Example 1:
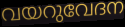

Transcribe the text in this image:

വയറുവേദന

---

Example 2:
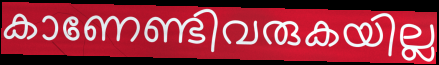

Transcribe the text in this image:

കാണേണ്ടിവരുകയില്ല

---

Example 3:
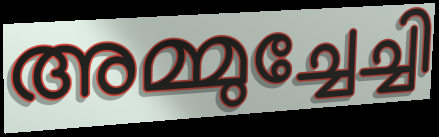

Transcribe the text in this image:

അമ്മുച്ചേച്ചി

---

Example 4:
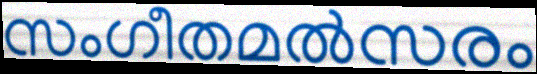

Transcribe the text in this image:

സംഗീതമൽസരം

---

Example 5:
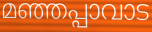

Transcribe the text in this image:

മഞ്ഞപ്പാവാട